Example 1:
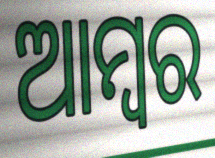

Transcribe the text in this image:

ଆମ୍ବର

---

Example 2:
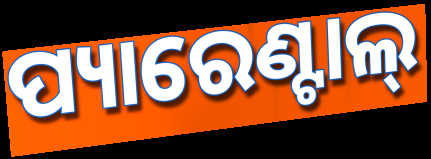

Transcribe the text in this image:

ପ୍ୟାରେଣ୍ଟାଲ୍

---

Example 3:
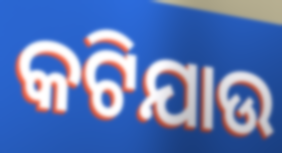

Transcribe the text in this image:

କଟିଯାଉ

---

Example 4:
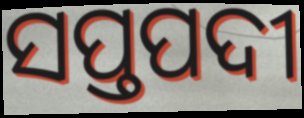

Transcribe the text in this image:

ସପ୍ତପଦୀ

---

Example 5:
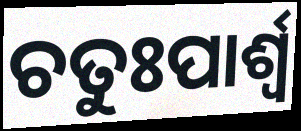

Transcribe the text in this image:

ଚତୁଃପାର୍ଶ୍ବ